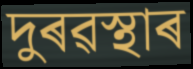
দুৰৱস্থাৰ